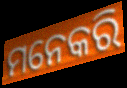
ମନେକରି